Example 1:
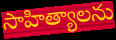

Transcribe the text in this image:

సాహిత్యాలను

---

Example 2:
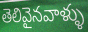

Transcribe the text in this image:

తెలివైనవాళ్ళు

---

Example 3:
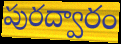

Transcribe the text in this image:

పురద్వారం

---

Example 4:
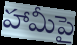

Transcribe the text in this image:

హామీపై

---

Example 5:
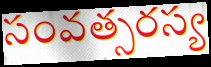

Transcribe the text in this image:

సంవత్సరస్య